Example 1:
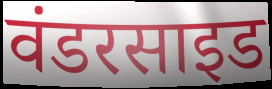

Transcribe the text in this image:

वंडरसाइड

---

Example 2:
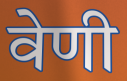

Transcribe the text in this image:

वेणी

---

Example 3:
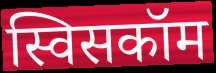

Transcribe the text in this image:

स्विसकॉम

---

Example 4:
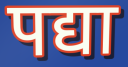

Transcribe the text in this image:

पद्या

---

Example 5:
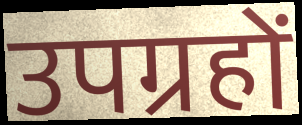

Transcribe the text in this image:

उपग्रहों